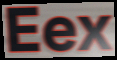
Eex